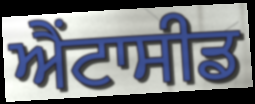
ਐਂਟਾਸੀਡ